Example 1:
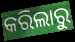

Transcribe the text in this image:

କରିଲାରୁ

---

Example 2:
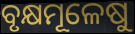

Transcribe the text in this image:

ବୃକ୍ଷମୂଳେଷୁ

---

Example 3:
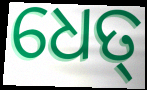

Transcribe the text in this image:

ଧେତ୍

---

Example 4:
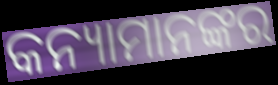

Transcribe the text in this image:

କନ୍ୟାମାନଙ୍କର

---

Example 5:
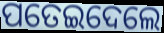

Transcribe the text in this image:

ପତେଇଦେଲେ